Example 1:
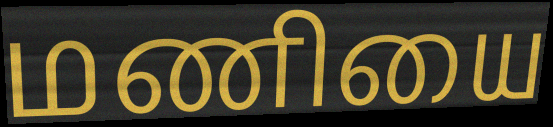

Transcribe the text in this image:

மணியை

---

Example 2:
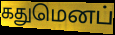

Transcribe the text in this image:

கதுமெனப்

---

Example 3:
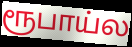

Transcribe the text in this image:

ரூபாய்ல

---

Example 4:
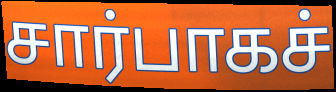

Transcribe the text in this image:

சார்பாகச்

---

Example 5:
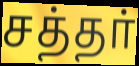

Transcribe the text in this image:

சத்தர்